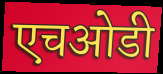
एचओडी